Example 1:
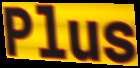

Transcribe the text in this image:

Plus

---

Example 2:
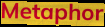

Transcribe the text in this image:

Metaphor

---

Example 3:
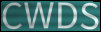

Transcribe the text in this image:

CWDS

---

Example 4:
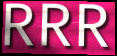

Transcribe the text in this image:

RRR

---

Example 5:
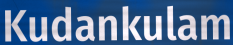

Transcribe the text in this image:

Kudankulam